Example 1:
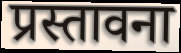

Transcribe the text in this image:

प्रस्तावना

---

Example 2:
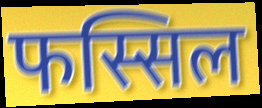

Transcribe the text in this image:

फस्सिल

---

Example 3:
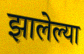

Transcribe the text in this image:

झालेल्या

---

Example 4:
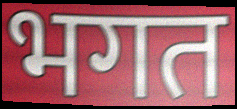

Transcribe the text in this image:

भगत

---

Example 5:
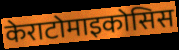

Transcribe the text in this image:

केराटोमाइकोसिस